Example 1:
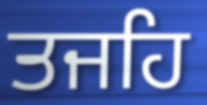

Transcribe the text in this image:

ਤਜਹਿ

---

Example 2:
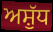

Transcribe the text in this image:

ਅਸ਼ੁੱਧ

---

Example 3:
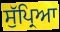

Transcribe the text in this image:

ਸੁੱਪ੍ਰਿਆ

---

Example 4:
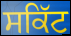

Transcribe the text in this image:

ਸਕਿੱਟ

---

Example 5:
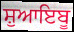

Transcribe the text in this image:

ਸ਼ੁਆਇਬੂ